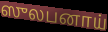
ஸுலபனாய்